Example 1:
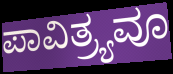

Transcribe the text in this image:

ಪಾವಿತ್ರ್ಯವೂ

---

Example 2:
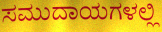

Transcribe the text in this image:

ಸಮುದಾಯಗಳಲ್ಲಿ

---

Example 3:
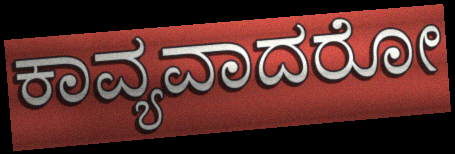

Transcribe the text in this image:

ಕಾವ್ಯವಾದರೋ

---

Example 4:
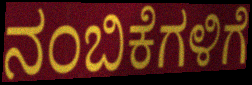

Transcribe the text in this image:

ನಂಬಿಕೆಗಳಿಗೆ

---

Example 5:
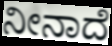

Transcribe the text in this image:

ನೀನಾದೆ